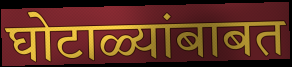
घोटाळ्यांबाबत